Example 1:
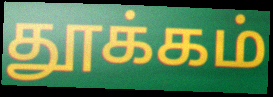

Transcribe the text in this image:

தூக்கம்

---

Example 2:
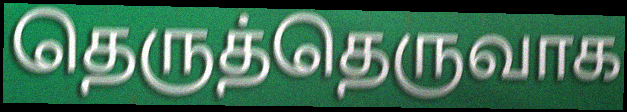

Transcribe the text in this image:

தெருத்தெருவாக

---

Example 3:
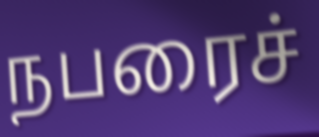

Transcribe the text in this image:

நபரைச்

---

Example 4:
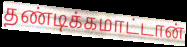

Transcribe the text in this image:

தண்டிக்கமாட்டான்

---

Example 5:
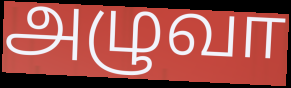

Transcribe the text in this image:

அழுவா